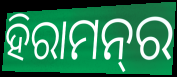
ହିରାମନ୍‍ର